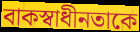
বাকস্বাধীনতাকে